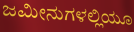
ಜಮೀನುಗಳಲ್ಲಿಯೂ